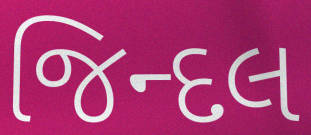
જિન્દલ